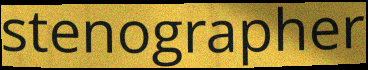
stenographer